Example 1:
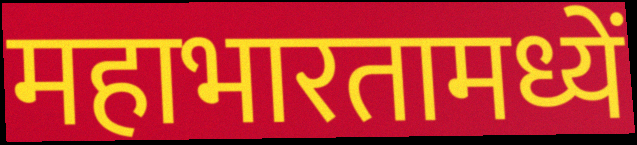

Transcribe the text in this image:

महाभारतामध्यें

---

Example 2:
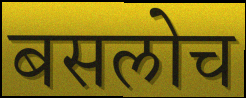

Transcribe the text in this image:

बसलोच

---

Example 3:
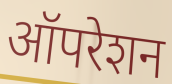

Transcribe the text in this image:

ऑपरेशन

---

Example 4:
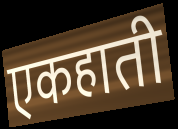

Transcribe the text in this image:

एकहाती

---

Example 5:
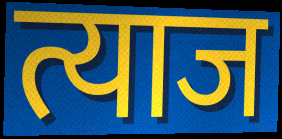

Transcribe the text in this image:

त्याज